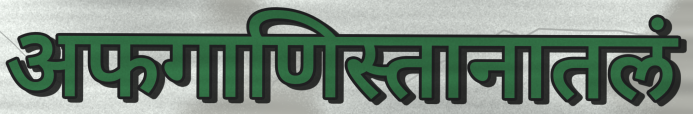
अफगाणिस्तानातलं